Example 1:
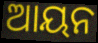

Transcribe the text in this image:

ଆୟନ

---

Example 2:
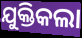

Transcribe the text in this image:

ଯୁକ୍ତିକଲା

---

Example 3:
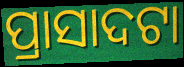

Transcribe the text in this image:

ପ୍ରାସାଦଟା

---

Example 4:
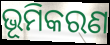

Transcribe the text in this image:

ଭୂମିକରଣ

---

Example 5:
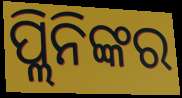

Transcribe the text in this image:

ପ୍ଲିନିଙ୍କର